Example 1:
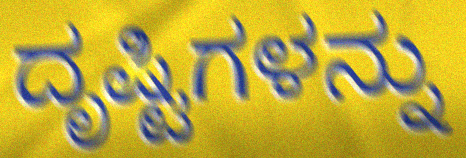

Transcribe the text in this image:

ದೃಷ್ಟಿಗಳನ್ನು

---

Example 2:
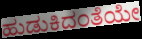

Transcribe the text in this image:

ಹುಡುಕಿದಂತೆಯೇ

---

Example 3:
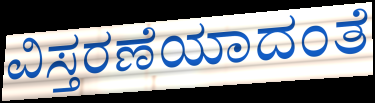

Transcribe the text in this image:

ವಿಸ್ತರಣೆಯಾದಂತೆ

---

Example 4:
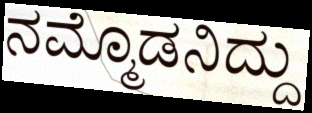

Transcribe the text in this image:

ನಮ್ಮೊಡನಿದ್ದು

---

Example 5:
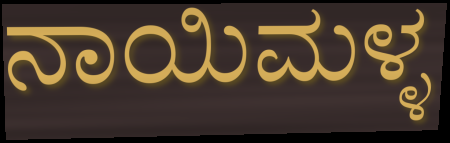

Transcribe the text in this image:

ನಾಯಿಮಳ್ಳ